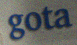
gota